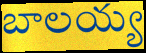
బాలయ్య